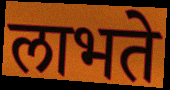
लाभते